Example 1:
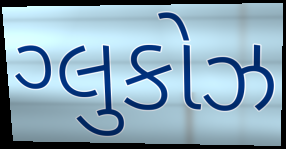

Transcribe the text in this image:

ગ્લુકોઝ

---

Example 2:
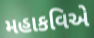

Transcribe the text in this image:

મહાકવિએ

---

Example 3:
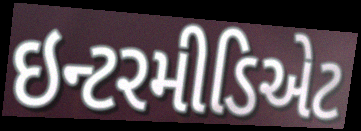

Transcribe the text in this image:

ઇન્ટરમીડિએટ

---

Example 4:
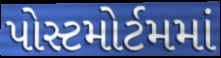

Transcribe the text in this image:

પોસ્ટમોર્ટમમાં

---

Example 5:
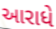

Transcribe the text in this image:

આરાધે